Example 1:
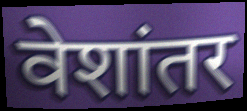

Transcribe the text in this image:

वेशांतर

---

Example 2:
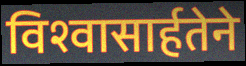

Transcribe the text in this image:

विश्वासार्हतेने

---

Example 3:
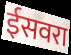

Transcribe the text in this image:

ईसवरा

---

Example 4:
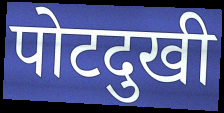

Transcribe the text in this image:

पोटदुखी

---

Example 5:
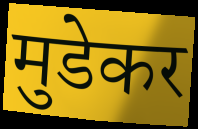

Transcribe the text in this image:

मुडेकर